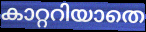
കാറ്ററിയാതെ